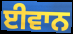
ਈਵਾਨ